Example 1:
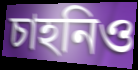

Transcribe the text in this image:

চাহনিও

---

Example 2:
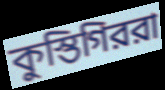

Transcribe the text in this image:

কুস্তিগিররা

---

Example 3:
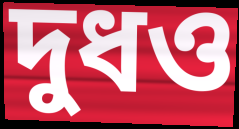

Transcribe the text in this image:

দুধও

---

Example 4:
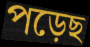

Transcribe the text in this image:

পড়েছ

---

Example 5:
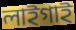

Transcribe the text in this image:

লাইগাই